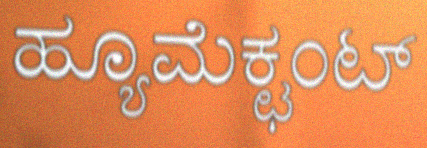
ಹ್ಯೂಮೆಕ್ಟಂಟ್